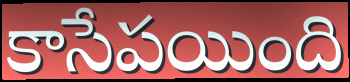
కాసేపయింది